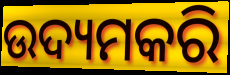
ଉଦ୍ୟମକରି